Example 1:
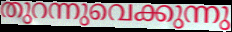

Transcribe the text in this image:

തുറന്നുവെക്കുന്നു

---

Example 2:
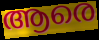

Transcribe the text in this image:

ആരെ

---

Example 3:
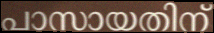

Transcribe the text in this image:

പാസായതിന്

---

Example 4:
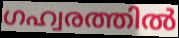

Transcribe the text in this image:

ഗഹ്വരത്തിൽ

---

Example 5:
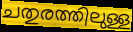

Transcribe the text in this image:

ചതുരത്തിലുള്ള